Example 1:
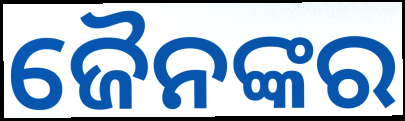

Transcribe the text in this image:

ଜୈନଙ୍କର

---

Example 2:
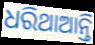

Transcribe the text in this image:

ଧରିଥାଆନ୍ତି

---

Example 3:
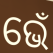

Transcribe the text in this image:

ଭେଁ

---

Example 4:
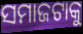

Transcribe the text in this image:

ସମାଜଟାକୁ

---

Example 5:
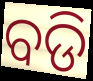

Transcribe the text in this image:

ବଡି